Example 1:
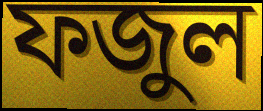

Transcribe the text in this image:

ফজুল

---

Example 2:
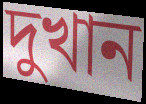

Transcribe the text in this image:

দুখান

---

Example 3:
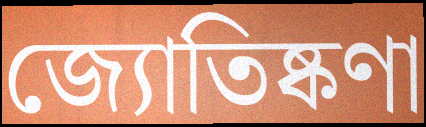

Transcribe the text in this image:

জ্যোতিষ্কণা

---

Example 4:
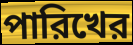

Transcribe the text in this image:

পারিখের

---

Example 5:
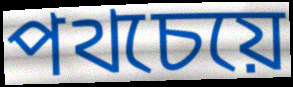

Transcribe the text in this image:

পথচেয়ে